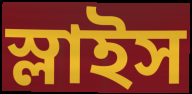
স্লাইস